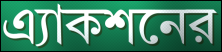
এ্যাকশনের